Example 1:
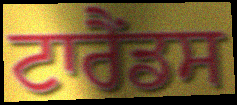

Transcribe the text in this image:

ਟਾਰੈਂਡਸ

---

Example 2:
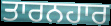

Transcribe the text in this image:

ਤਾਰਨਹਾਰ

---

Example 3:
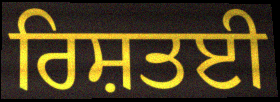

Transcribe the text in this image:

ਰਿਸ਼ਤਈ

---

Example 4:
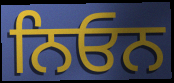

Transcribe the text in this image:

ਨਿਓਨ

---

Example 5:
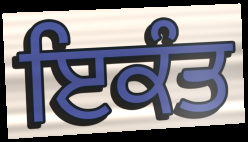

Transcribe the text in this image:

ਇਕੰਤ